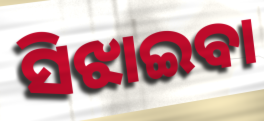
ସିଝାଇବା